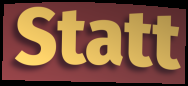
Statt